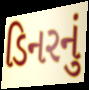
ડિનરનું